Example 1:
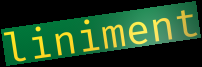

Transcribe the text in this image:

liniment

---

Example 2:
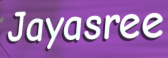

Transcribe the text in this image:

Jayasree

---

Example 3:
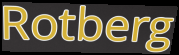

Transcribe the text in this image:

Rotberg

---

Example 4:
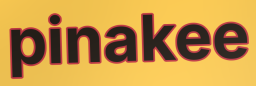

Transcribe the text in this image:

pinakee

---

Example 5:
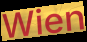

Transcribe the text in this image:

Wien